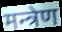
मन्त्रेण